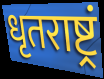
धृतराष्ट्रं